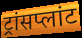
ट्रांसप्लांट